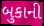
બુકાની